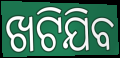
ଖଟିଯିବ